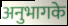
अनुभागके